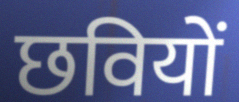
छवियों